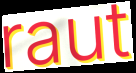
raut